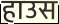
हाउस